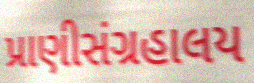
પ્રાણીસંગ્રહાલય